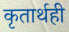
कृतार्थही